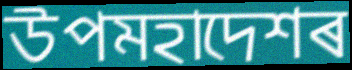
উপমহাদেশৰ